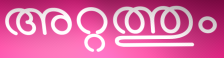
അറ്റത്തും